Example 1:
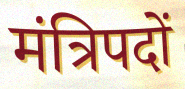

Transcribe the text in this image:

मंत्रिपदों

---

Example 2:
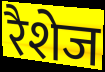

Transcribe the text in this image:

रैशेज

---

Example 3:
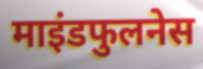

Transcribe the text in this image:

माइंडफुलनेस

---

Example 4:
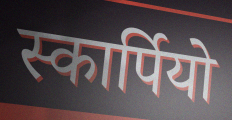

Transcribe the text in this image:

स्कार्पियो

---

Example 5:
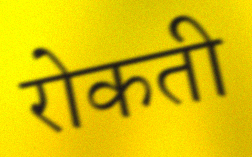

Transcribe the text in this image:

रोकती